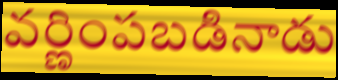
వర్ణింపబడినాడు